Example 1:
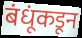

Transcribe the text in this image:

बंधूंकडून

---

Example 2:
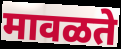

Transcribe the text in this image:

मावळते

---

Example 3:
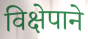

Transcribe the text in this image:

विक्षेपाने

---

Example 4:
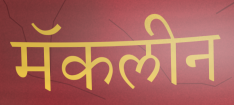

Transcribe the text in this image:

मॅकलीन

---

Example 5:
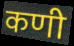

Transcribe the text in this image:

कणी